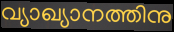
വ്യാഖ്യാനത്തിനു